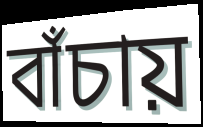
বাঁচায়